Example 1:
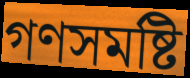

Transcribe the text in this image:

গণসমষ্টি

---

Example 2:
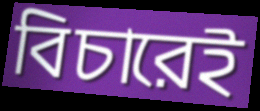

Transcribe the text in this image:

বিচারেই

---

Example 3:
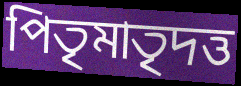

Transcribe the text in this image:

পিতৃমাতৃদত্ত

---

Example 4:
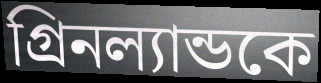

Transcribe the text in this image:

গ্রিনল্যান্ডকে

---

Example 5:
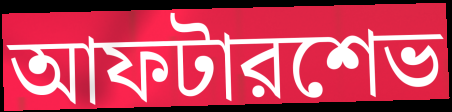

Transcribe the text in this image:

আফটারশেভ